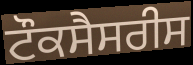
ਟੌਕਸੈਸਰੀਸ